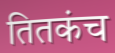
तितकंच